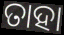
ତାହା